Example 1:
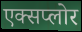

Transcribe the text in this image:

एक्सप्लोर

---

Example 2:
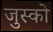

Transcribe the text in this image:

जुस्को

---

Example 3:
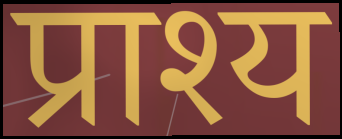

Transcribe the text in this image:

प्राश्य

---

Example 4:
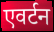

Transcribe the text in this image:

एवर्टन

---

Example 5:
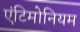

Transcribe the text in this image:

एंटिमोनियम